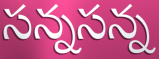
సన్నసన్న